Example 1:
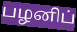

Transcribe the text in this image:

பழனிப்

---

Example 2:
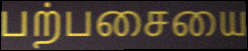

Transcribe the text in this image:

பற்பசையை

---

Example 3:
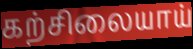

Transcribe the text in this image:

கற்சிலையாய்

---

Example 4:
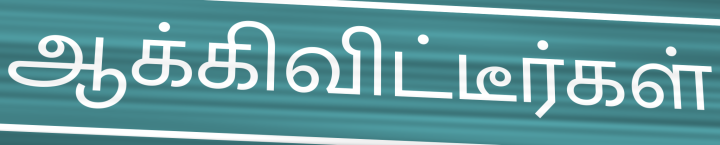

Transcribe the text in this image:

ஆக்கிவிட்டீர்கள்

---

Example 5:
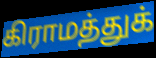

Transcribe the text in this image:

கிராமத்துக்